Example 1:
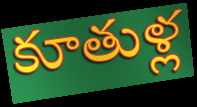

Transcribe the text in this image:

కూతుళ్ల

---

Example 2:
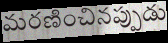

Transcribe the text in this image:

మరణించినప్పుడు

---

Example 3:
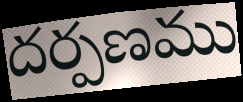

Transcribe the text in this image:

దర్పణము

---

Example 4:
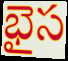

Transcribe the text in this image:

భైస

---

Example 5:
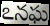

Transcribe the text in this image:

ఽనఘ